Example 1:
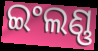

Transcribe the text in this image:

ଇଂଲଣ୍ଣ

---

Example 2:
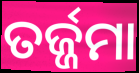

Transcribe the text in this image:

ତର୍ଜ୍ଜମା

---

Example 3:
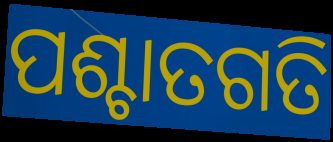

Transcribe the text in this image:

ପଶ୍ଚାତଗତି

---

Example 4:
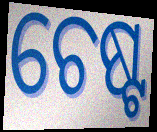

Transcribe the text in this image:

ଚେଷ୍ଟ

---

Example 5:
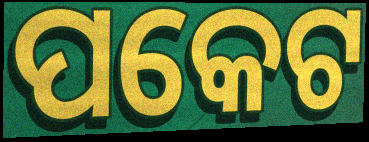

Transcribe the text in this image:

ପକେଟ